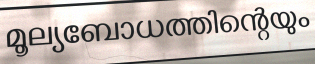
മൂല്യബോധത്തിന്റെയും